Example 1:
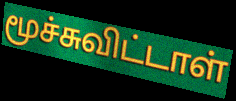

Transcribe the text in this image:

மூச்சுவிட்டாள்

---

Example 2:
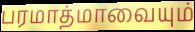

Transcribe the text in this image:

பரமாத்மாவையும்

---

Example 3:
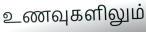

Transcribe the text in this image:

உணவுகளிலும்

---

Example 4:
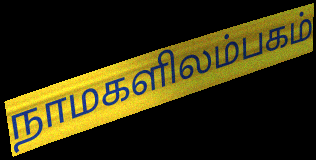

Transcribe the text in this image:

நாமகளிலம்பகம்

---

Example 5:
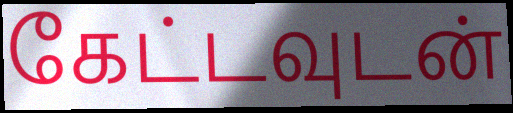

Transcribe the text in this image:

கேட்டவுடன்